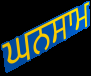
ਘਨਸਾਮ